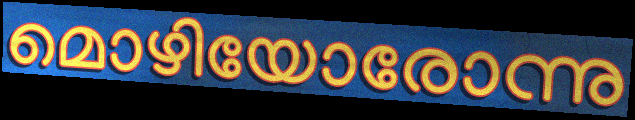
മൊഴിയോരോന്നു